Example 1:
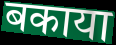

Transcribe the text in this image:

बकाया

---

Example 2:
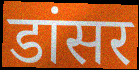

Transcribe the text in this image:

डांसर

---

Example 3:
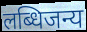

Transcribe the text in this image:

लब्धिजन्य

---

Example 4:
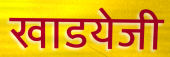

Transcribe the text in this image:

खाडयेजी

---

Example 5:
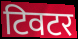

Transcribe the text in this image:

टिवटर